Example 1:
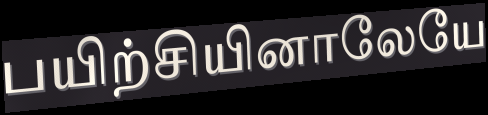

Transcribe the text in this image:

பயிற்சியினாலேயே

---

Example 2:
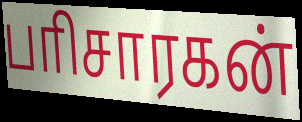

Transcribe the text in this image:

பரிசாரகன்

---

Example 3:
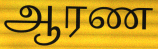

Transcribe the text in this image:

ஆரண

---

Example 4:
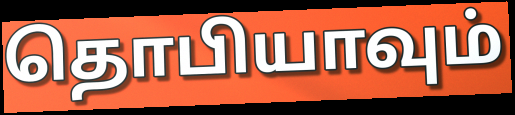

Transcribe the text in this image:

தொபியாவும்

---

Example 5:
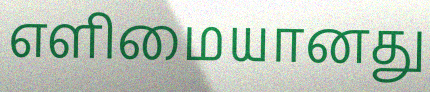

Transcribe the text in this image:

எளிமையானது